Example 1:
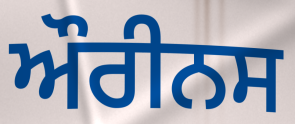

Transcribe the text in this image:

ਔਰੀਨਸ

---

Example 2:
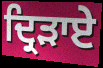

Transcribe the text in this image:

ਦ੍ਰਿੜਾਏ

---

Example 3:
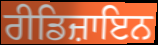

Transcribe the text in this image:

ਰੀਡਿਜ਼ਾਇਨ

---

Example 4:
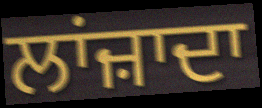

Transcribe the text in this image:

ਲਾਂਜ਼ਾਦਾ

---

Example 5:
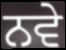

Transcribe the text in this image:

ਨਵੇ